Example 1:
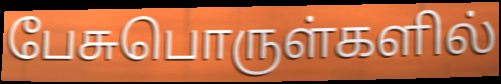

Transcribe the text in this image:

பேசுபொருள்களில்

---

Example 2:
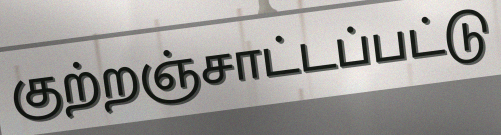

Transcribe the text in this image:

குற்றஞ்சாட்டப்பட்டு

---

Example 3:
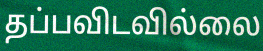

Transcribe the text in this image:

தப்பவிடவில்லை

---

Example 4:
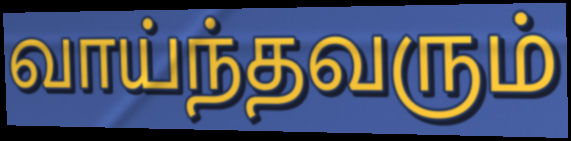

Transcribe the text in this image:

வாய்ந்தவரும்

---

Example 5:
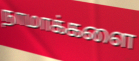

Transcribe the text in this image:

நாமாக்களை